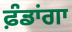
ਫ਼ੰਡਾਂਗਾ